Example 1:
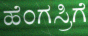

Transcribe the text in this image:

ಹೆಂಗಸ್ರಿಗೆ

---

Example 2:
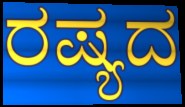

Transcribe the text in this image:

ರಷ್ಯದ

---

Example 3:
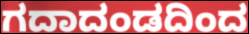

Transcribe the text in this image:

ಗದಾದಂಡದಿಂದ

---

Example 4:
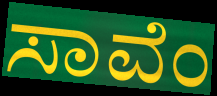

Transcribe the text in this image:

ಸಾವೆಂ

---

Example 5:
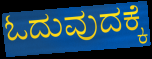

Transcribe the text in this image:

ಓದುವುದಕ್ಕೆ